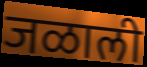
जळाली